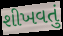
શીખવતું